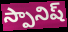
స్పానిష్